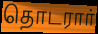
தொடரார்